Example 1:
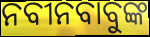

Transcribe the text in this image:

ନବୀନବାବୁଙ୍କ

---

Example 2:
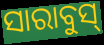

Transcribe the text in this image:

ସାରାବୁସ୍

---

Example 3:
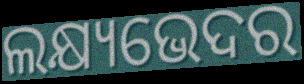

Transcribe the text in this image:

ଲକ୍ଷ୍ୟଭେଦର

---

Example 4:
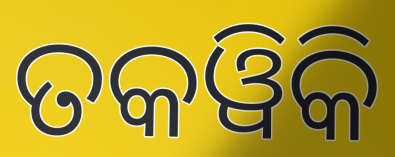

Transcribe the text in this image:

ତକୱିକି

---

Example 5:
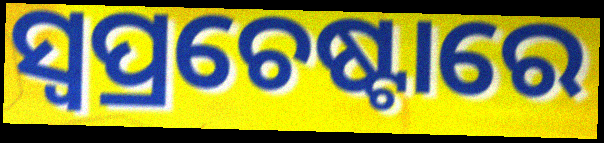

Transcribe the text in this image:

ସ୍ଵପ୍ରଚେଷ୍ଟାରେ